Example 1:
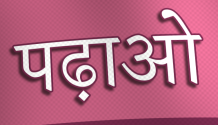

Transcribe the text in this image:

पढ़ाओ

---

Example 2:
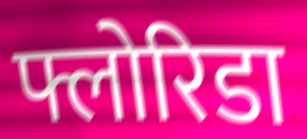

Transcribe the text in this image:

फ्लोरिडा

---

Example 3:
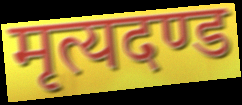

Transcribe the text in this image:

मृत्यदण्ड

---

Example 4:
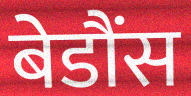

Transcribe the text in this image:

बेडौंस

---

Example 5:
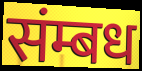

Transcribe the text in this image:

संम्बध